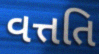
વત્તતિ